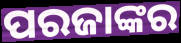
ପରଜାଙ୍କର